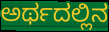
ಅರ್ಥದಲ್ಲಿನ